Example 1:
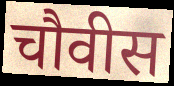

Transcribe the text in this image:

चौवीस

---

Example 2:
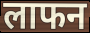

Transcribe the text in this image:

लाफन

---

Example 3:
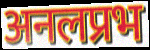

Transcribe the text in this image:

अनलप्रभ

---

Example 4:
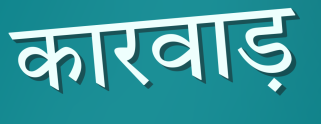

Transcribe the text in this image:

कारवाड़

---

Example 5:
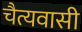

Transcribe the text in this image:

चैत्यवासी